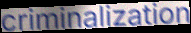
criminalization